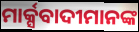
ମାର୍କ୍ସବାଦୀମାନଙ୍କ